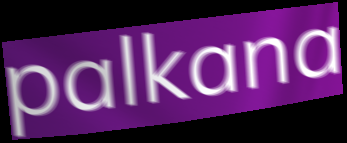
palkana